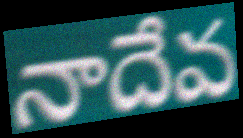
నాదేవ